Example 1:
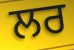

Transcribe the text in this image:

ਲਰ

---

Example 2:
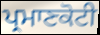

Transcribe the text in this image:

ਪ੍ਰਮਾਣਕੋਟੀ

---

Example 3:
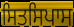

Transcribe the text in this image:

ਸਿਤਸਿਪਾਸ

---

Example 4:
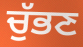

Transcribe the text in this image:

ਚੁੱਭਣ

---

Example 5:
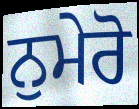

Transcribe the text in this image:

ਨੁਮੇਰੋ